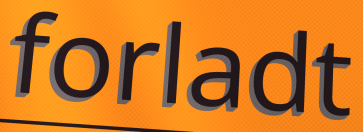
forladt